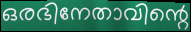
ഒരഭിനേതാവിന്റെ